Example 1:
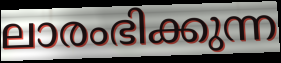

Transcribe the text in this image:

ലാരംഭിക്കുന്ന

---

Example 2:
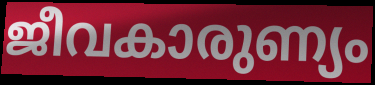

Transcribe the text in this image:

ജീവകാരുണ്യം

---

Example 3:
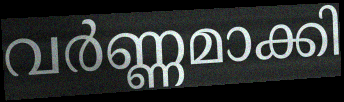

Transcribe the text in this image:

വർണ്ണമാക്കി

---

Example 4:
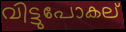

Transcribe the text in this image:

വിട്ടുപോകല്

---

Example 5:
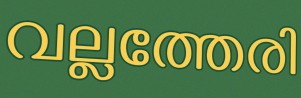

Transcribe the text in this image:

വല്ലത്തേരി